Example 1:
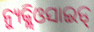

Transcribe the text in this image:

ନ୍ୟୁକ୍ଲିଓସାଇଡ୍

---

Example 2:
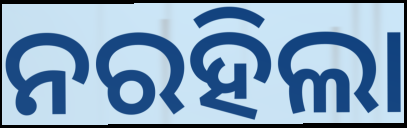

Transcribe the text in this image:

ନରହିଲା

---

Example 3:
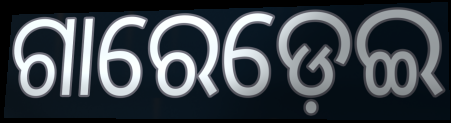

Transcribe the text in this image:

ଗାରେଡ଼େଇ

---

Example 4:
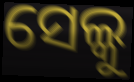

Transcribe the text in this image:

ସେଲ୍କୁ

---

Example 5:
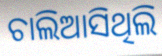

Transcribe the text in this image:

ଚାଲିଆସିଥିଲି